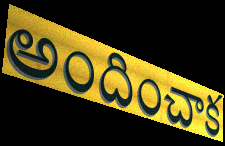
అందించాక